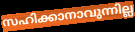
സഹിക്കാനാവുന്നില്ല